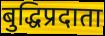
बुद्धिप्रदाता